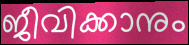
ജീവിക്കാനും